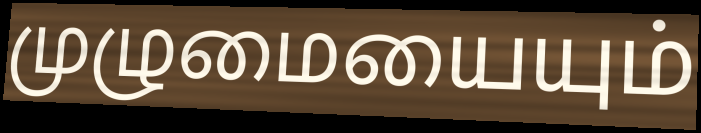
முழுமையையும்